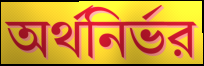
অর্থনির্ভর